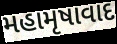
મહામૃષાવાદ